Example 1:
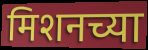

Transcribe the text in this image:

मिशनच्या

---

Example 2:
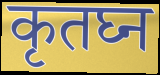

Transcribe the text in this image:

कृतघ्न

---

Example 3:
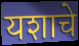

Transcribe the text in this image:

यशाचे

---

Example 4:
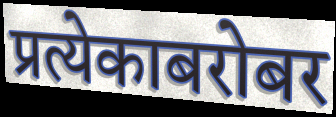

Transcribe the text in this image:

प्रत्येकाबरोबर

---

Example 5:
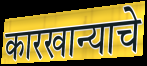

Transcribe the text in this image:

कारखान्याचे